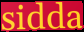
sidda